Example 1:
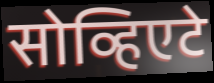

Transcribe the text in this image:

सोव्हिएटे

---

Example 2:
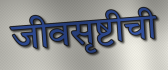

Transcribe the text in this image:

जीवसृष्टीची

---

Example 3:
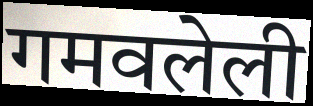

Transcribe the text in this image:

गमवलेली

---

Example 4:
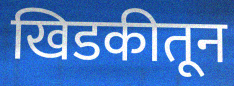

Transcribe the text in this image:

खिडकीतून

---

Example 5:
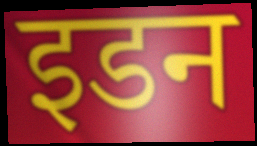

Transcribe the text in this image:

इडन